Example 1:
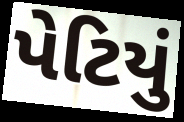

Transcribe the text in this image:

પેટિયું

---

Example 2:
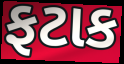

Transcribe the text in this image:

ફટાક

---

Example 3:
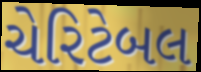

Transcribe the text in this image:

ચેરિટેબલ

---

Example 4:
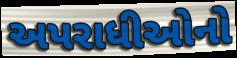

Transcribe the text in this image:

અપરાધીઓનો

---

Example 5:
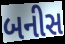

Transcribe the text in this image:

બનીસ